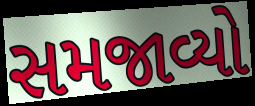
સમજાવ્યો